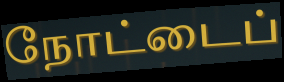
நோட்டைப்